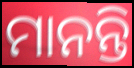
ମାନନ୍ତି